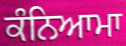
ਕੰਨਿਆਮਾ